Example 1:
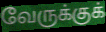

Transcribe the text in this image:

வேருக்குக்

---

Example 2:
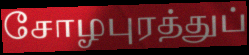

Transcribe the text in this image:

சோழபுரத்துப்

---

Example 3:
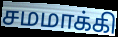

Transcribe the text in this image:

சமமாக்கி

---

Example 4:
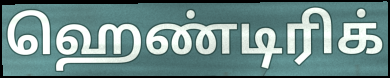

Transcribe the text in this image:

ஹெண்டிரிக்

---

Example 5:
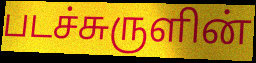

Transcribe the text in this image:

படச்சுருளின்